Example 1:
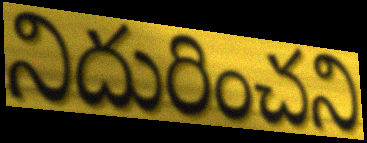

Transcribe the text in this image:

నిదురించని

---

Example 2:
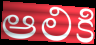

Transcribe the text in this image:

ఆలికి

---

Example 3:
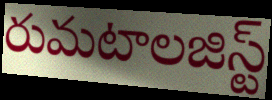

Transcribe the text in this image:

రుమటాలజిస్ట్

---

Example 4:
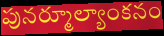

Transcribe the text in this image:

పునర్మూల్యాంకనం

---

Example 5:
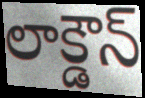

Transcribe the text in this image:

లాక్డౌన్